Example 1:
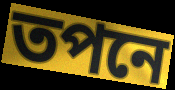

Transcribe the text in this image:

তপনে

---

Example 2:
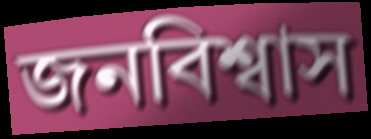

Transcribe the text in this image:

জনবিশ্বাস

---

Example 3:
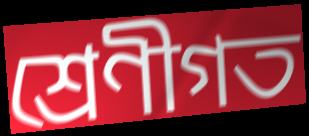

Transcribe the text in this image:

শ্ৰেণীগত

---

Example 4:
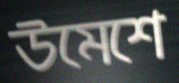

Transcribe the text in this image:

উমেশে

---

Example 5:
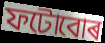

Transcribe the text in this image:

ফটোবোৰ